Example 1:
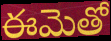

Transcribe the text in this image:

ఈమెతో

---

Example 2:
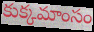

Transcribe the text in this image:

కుక్కమాంసం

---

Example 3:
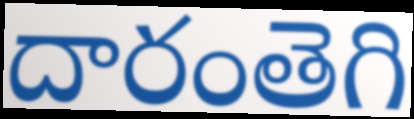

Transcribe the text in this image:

దారంతెగి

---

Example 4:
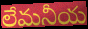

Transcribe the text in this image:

లేమనీయ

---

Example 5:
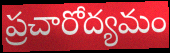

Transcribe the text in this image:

ప్రచారోద్యమం